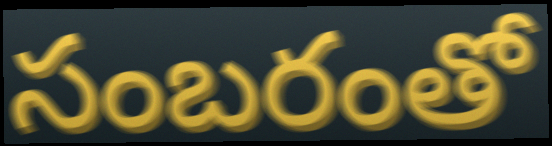
సంబరంతో